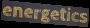
energetics